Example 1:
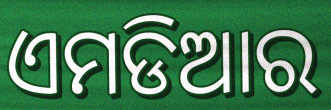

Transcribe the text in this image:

ଏମଡିଆର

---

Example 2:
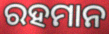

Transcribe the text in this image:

ରହମାନ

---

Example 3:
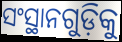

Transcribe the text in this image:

ସଂସ୍ଥାନଗୁଡ଼ିକୁ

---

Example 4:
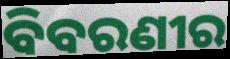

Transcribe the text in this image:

ବିବରଣୀର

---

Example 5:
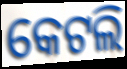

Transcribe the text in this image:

କେଟଲି